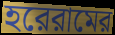
হরেরামের